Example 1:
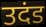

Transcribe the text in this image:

उदंड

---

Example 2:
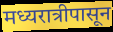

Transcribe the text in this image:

मध्यरात्रीपासून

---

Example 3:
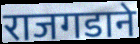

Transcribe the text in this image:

राजगडाने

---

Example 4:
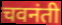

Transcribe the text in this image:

चवनंती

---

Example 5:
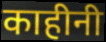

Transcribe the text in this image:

काहीनी